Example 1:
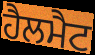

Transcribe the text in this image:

ਹੈਲਮੈਟ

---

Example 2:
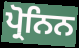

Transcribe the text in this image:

ਪ੍ਰੋਨਿਨ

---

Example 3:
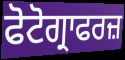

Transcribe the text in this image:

ਫੋਟੋਗ੍ਰਾਫਰਜ਼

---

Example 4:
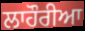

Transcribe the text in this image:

ਲਾਹੌਰੀਆ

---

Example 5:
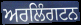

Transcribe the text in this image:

ਅਰਲਿੰਗਟਨ